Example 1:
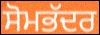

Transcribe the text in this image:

ਸੋਮਭੱਦਰ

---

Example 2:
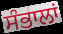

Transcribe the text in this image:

ਸੰਭਾਲਾਂ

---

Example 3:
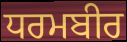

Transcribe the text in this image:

ਧਰਮਬੀਰ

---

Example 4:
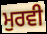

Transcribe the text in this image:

ਮੁਰਵੀ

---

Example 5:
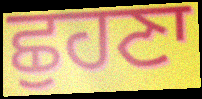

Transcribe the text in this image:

ਛੁਹਣਾ